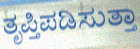
ತೃಪ್ತಿಪಡಿಸುತ್ತಾ